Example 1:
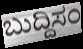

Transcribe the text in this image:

ಬುದ್ದಿಸಂ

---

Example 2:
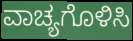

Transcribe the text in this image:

ವಾಚ್ಯಗೊಳಿಸಿ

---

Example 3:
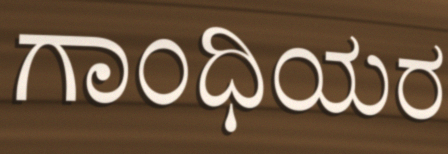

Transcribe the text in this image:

ಗಾಂಧಿಯರ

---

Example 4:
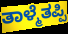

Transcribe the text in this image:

ತಾಳ್ಮೆತಪ್ಪಿ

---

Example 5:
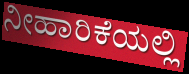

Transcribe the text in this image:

ನೀಹಾರಿಕೆಯಲ್ಲಿ